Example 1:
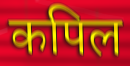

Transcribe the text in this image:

कपिल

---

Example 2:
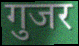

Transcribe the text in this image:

गुजर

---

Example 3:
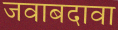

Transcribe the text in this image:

जवाबदावा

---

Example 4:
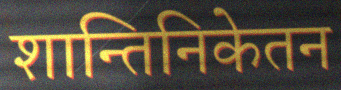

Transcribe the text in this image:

शान्तिनिकेतन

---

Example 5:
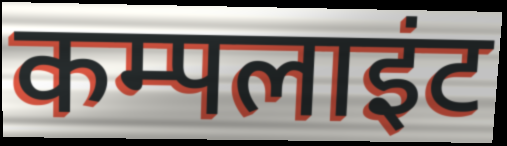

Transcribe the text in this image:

कम्पलाइंट